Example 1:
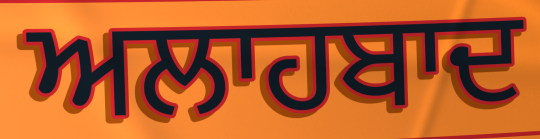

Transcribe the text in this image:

ਅਲਾਹਬਾਦ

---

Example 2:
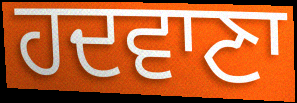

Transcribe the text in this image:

ਹਦਵਾਣਾ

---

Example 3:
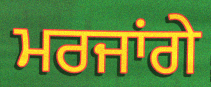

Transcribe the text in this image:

ਮਰਜਾਂਗੇ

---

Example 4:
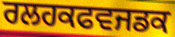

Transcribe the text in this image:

ਰਲਹਕਫਵਜਡਕ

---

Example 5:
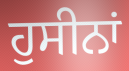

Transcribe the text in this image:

ਹੁਸੀਨਾਂ